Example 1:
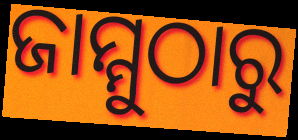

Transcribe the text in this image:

ଜାମ୍ମୁଠାରୁ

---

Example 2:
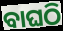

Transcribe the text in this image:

ବାଘଠି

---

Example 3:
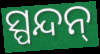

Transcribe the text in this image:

ସ୍ପନ୍ଦନ୍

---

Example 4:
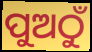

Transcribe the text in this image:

ପୁଅଠୁଁ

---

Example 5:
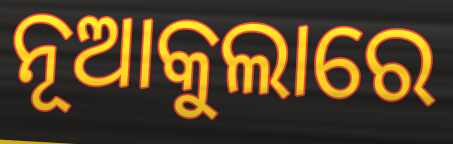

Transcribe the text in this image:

ନୂଆକୁଲାରେ